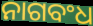
ନାଗବଂଧ